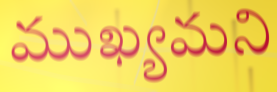
ముఖ్యమని